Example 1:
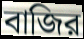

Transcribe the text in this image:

বাজির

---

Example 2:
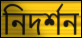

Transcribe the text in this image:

নিদর্শন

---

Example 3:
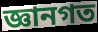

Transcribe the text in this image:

জ্ঞানগত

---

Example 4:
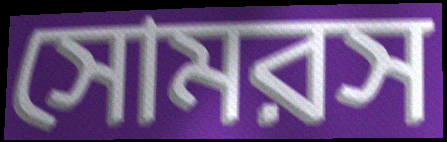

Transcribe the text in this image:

সোমরস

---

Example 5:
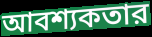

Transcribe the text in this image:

আবশ্যকতার